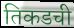
तिकडची